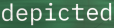
depicted